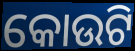
କୋଉଟି